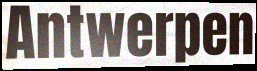
Antwerpen